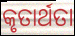
କୃତାର୍ଥତା